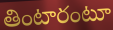
తింటారంటూ